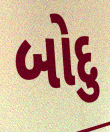
બોદુ